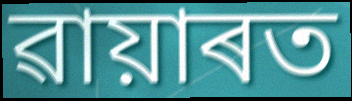
ৱায়াৰত